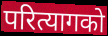
परित्यागको